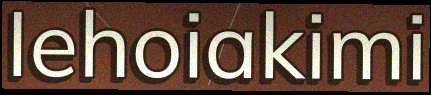
Iehoiakimi